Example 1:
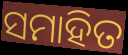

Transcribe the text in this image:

ସମାହିତ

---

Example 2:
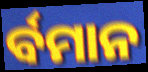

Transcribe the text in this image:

ର୍ବମାନ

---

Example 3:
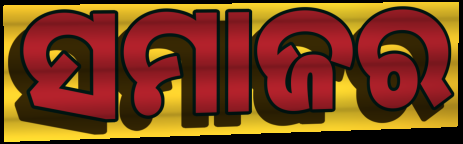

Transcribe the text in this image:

ସମାଜର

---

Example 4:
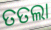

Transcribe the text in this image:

ତତଲା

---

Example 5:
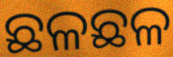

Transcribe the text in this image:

ଛଳଛଳ